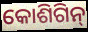
କୋଶିଗିନ୍